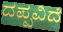
ದಪ್ಪವಿದೆ